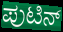
ಪುಟಿನ್